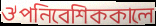
ঔপনিবেশিককালে